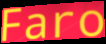
Faro